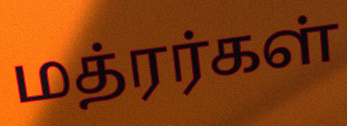
மத்ரர்கள்